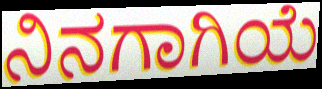
ನಿನಗಾಗಿಯೆ